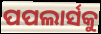
ପପଲାର୍ସକୁ